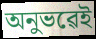
অনুভৱেই